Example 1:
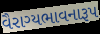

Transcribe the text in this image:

વૈરાગ્યભાવનારૂપ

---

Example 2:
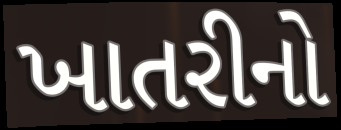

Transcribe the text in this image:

ખાતરીનો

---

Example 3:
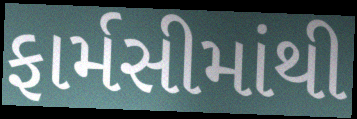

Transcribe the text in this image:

ફાર્મસીમાંથી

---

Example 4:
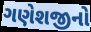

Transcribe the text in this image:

ગણેશજીનો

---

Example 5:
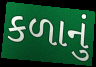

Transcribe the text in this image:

કળાનું